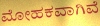
ಮೋಹಕವಾಗಿವೆ